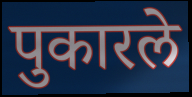
पुकारले